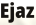
Ejaz